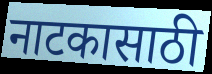
नाटकासाठी